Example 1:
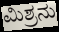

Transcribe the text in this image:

ಮಿಶ್ರನು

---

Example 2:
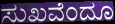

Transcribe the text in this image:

ಸುಖವೆಂದೂ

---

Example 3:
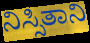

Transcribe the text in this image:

ನಿಸ್ಸಿತಾನಿ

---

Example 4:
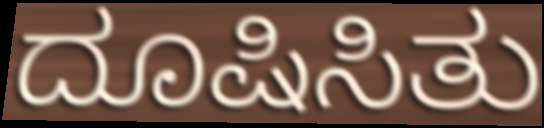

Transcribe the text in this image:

ದೂಷಿಸಿತು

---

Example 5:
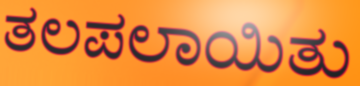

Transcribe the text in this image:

ತಲಪಲಾಯಿತು